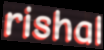
rishal